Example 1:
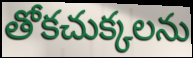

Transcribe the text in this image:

తోకచుక్కలను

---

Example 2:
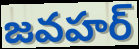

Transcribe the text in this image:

జవహర్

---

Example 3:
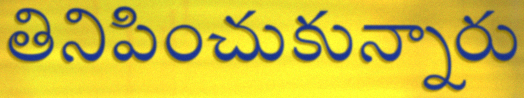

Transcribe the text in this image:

తినిపించుకున్నారు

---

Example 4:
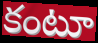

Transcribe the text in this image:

కంటూ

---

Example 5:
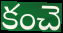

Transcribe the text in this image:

కంచె